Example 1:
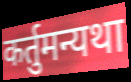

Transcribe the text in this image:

कर्तुमन्यथा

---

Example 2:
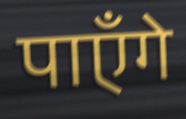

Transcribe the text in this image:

पाएँगे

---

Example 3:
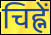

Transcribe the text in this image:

चिह्नें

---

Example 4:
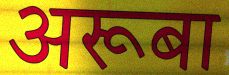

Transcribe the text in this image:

अरूबा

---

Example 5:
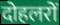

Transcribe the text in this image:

दोहलरों